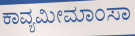
ಕಾವ್ಯಮೀಮಾಂಸಾ